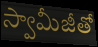
స్వామీజీతో